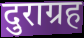
दुराग्रह